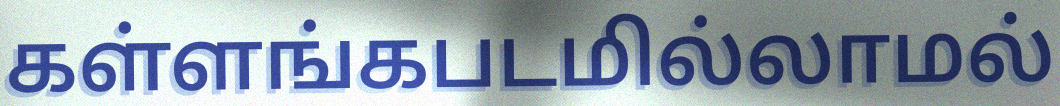
கள்ளங்கபடமில்லாமல்